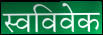
स्वविवेक